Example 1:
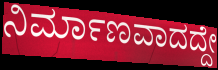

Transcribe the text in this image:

ನಿರ್ಮಾಣವಾದದ್ದೇ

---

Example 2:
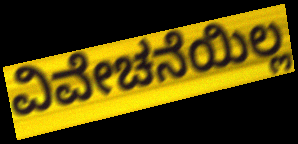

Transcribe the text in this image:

ವಿವೇಚನೆಯಿಲ್ಲ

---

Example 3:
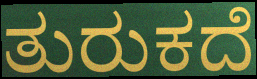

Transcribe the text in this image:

ತುರುಕದೆ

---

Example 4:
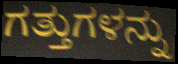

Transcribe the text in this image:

ಗತ್ತುಗಳನ್ನು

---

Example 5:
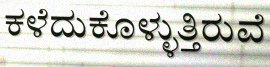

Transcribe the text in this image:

ಕಳೆದುಕೊಳ್ಳುತ್ತಿರುವೆ